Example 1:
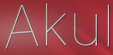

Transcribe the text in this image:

Akul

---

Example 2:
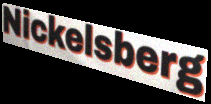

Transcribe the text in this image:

Nickelsberg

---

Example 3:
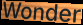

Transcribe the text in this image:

Wonder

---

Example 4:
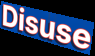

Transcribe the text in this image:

Disuse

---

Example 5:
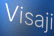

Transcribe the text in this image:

Visaji